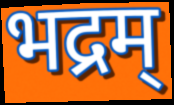
भद्रम्